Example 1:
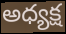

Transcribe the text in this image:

అధ్యక్ష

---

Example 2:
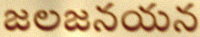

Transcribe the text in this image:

జలజనయన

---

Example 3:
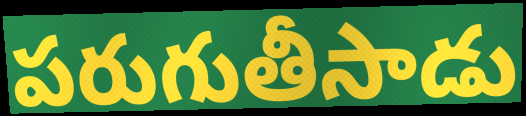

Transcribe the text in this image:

పరుగుతీసాడు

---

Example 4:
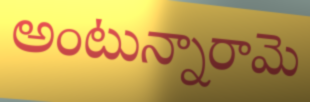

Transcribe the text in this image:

అంటున్నారామె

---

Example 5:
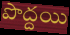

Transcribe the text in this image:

పొద్దయి